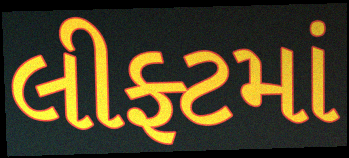
લીફ્ટમાં